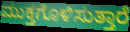
ಮುಕ್ತಗೊಳಿಸುತ್ತಾರೆ